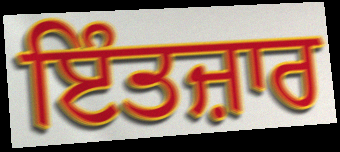
ਇੰਤਜ਼ਾਰ